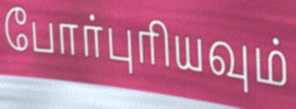
போர்புரியவும்